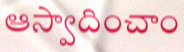
ఆస్వాదించాం